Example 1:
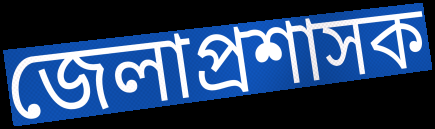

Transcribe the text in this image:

জেলাপ্রশাসক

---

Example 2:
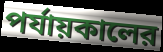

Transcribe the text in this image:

পর্যায়কালের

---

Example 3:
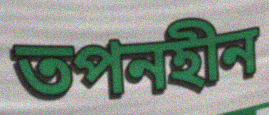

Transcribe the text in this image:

তপনহীন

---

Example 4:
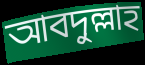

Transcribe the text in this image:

আবদুল্লাহ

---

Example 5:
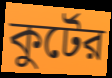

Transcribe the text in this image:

কুর্টের